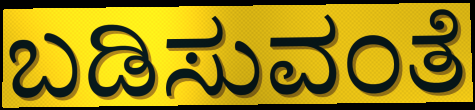
ಬಡಿಸುವಂತೆ